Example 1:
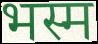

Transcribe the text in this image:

भस्म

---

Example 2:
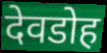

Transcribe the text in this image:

देवडोह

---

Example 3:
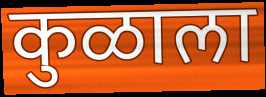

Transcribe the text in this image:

कुळाला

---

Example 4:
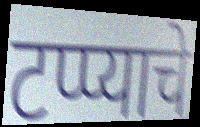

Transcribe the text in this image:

टप्प्याचे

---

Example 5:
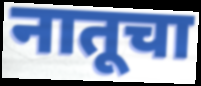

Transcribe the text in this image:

नातूचा